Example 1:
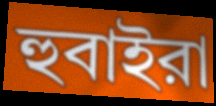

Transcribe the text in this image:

হুবাইরা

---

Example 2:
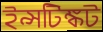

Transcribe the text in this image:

ইন্সটিঙ্কট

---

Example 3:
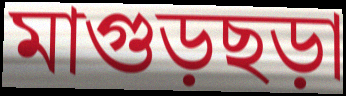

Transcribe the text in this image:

মাগুড়ছড়া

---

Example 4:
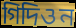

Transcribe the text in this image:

গিদিওন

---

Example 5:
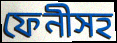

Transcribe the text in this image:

ফেনীসহ